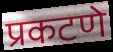
प्रकटणे